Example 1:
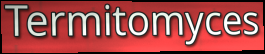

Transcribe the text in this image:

Termitomyces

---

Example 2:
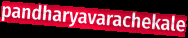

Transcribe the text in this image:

pandharyavarachekale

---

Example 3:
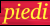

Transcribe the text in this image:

piedi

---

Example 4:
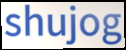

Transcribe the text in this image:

shujog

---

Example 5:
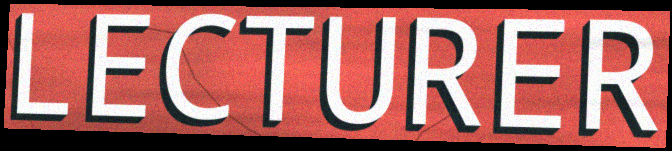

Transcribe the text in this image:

LECTURER